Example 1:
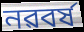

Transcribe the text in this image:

নৱবৰ্ষ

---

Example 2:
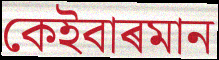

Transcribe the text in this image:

কেইবাৰমান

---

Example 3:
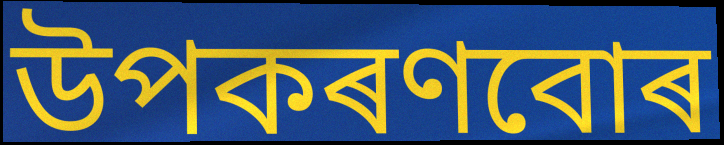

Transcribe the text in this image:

উপকৰণবোৰ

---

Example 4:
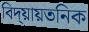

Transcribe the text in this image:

বিদ্য়ায়তনিক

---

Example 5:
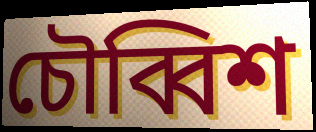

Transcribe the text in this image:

চৌব্বিশ